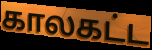
காலகட்ட